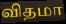
விதமா